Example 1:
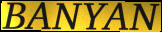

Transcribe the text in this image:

BANYAN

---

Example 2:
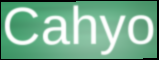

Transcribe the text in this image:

Cahyo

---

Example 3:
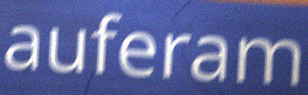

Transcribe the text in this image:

auferam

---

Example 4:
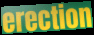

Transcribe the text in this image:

erection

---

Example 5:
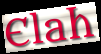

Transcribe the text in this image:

Elah